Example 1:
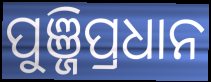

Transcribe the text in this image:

ପୁଞ୍ଜିପ୍ରଧାନ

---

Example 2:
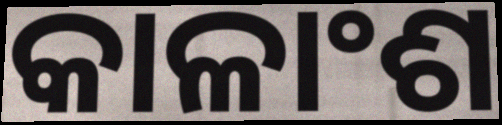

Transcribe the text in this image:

କାଳାଂଶ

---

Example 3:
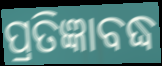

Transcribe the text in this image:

ପ୍ରତିଜ୍ଞାବଦ୍ଧ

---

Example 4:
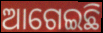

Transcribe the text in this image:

ଆଗେଇଛି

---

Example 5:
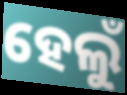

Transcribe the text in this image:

ହେଲୁଁ